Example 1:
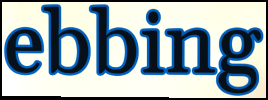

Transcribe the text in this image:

ebbing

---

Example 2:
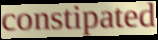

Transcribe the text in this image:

constipated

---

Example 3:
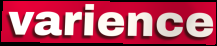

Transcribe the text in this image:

varience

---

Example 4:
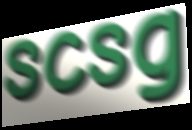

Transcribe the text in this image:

scsg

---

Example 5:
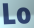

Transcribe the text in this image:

Lo